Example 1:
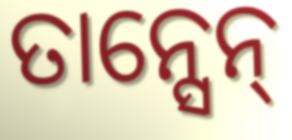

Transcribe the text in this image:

ତାନ୍ସେନ୍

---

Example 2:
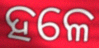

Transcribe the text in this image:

ହଳେ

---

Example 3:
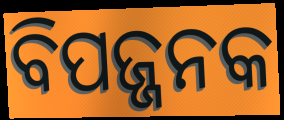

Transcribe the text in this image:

ବିପଜ୍ଜନକ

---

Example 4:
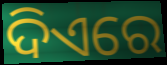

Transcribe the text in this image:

ଦିଏରେ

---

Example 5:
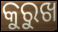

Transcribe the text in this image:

କୁରୁଖ